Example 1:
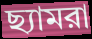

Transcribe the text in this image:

ছ্যামরা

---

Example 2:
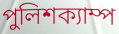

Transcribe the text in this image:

পুলিশক্যাম্প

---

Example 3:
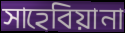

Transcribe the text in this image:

সাহেবিয়ানা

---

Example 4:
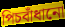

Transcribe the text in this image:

পিচবাঁধানো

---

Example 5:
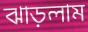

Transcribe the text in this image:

ঝাড়লাম